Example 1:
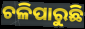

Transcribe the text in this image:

ଚଳିପାରୁଛି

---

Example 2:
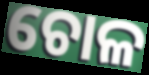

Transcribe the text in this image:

ଚୋଳ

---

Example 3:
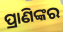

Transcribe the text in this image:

ପ୍ରାଣିଙ୍କର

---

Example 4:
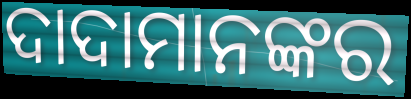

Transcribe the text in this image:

ଦାଦାମାନଙ୍କର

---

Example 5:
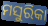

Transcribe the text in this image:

ମସୁରିକା